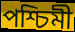
পশ্চিমী